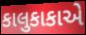
કાલુકાકાએ